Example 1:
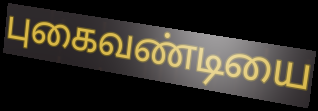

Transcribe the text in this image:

புகைவண்டியை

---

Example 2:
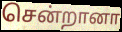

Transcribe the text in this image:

சென்றானா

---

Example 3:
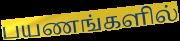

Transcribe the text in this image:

பயணங்களில்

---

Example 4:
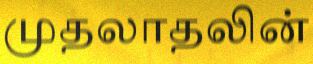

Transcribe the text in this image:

முதலாதலின்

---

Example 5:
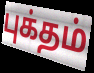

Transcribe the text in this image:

புக்தம்